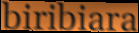
biribiara